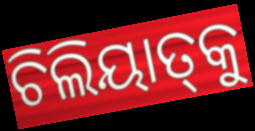
ଚିଲିୟାତ୍‍କୁ